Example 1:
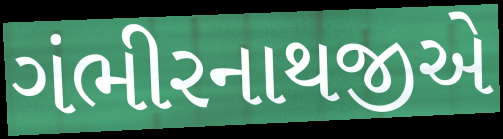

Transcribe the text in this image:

ગંભીરનાથજીએ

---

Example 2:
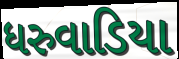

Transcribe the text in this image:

ધરુવાડિયા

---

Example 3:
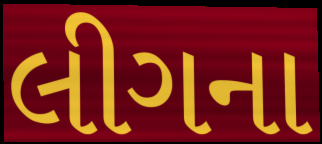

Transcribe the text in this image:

લીગના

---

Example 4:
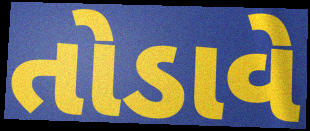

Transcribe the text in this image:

તોડાવે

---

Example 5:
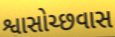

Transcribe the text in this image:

શ્વાસોચ્છવાસ